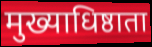
मुख्याधिष्ठाता